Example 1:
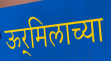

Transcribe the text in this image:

ऊर्मिलाच्या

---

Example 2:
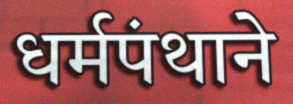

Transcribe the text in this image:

धर्मपंथाने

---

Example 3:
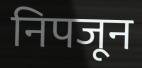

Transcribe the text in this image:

निपजून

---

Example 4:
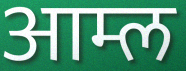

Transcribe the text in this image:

आम्ल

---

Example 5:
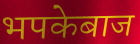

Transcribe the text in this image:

भपकेबाज